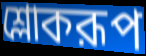
শ্লোকরূপ